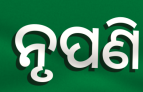
ନୃପଣି